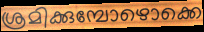
ശ്രമിക്കുമ്പോഴൊക്കെ